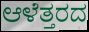
ಆಳೆತ್ತರದ